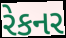
રેકનર